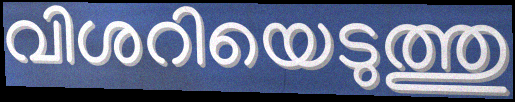
വിശറിയെടുത്തു